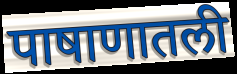
पाषाणातली